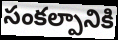
సంకల్పానికి